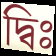
দ্বিঃ